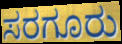
ಸರಗೂರು